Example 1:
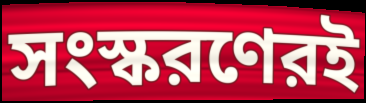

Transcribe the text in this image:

সংস্করণেরই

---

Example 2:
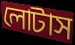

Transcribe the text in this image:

লোটাস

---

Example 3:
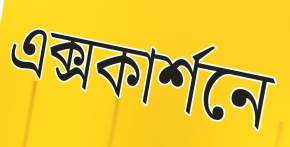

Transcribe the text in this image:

এক্সকার্শনে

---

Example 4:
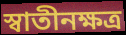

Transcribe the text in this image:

স্বাতীনক্ষত্র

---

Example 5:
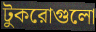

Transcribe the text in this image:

টুকরোগুলো